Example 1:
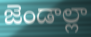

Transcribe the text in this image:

జెండాల్లా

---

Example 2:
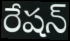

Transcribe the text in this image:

రేషన్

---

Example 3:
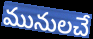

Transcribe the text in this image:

మునులచే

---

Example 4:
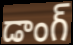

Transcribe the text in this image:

డాంగ్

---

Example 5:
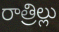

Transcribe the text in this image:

రాత్రిల్లు